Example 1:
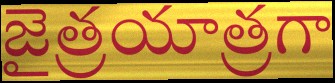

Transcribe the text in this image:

జైత్రయాత్రగా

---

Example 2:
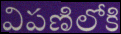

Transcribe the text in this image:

విపణిలోకి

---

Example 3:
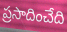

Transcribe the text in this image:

ప్రసాదించేది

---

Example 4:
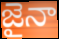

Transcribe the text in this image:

జైనా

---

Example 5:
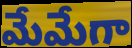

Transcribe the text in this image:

మేమేగా